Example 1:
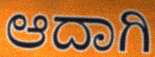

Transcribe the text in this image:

ಆದಾಗಿ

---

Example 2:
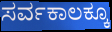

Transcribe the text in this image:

ಸರ್ವಕಾಲಕ್ಕೂ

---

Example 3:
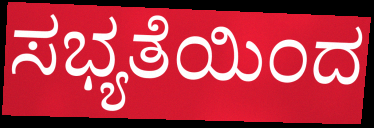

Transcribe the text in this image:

ಸಭ್ಯತೆಯಿಂದ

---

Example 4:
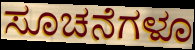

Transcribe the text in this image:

ಸೂಚನೆಗಳೂ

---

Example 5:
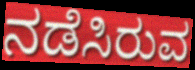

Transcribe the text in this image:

ನಡೆಸಿರುವ